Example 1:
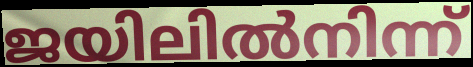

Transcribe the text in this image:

ജയിലിൽനിന്ന്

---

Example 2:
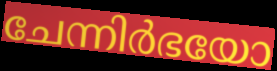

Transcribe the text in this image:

ചേന്നിർഭയോ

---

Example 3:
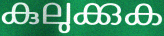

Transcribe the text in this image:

കുലുക്കുക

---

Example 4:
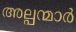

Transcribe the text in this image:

അല്പന്മാർ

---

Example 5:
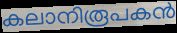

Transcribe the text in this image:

കലാനിരൂപകൻ